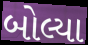
બોલ્યા